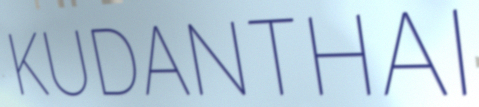
KUDANTHAI